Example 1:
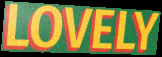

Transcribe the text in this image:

LOVELY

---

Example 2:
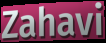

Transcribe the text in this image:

Zahavi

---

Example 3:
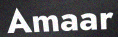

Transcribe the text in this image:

Amaar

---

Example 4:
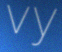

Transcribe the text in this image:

vy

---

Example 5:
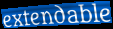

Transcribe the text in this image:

extendable